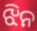
ଝିନ